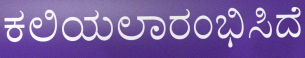
ಕಲಿಯಲಾರಂಭಿಸಿದೆ